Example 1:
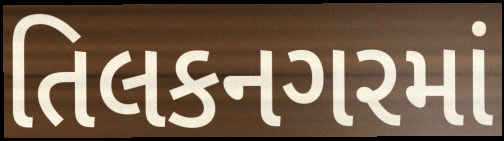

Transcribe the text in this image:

તિલકનગરમાં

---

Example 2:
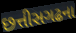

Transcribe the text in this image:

છત્તીસગઢના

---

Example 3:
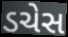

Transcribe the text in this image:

ડચેસ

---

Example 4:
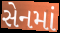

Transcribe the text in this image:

સેનમાં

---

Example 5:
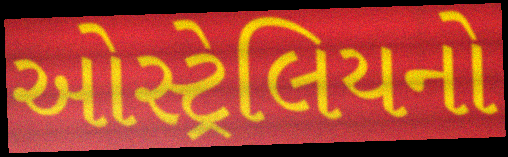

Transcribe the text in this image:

ઓસ્ટ્રેલિયનો